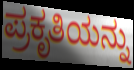
ಪ್ರಕೃತಿಯನ್ನು